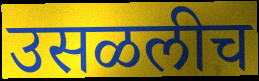
उसळलीच